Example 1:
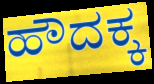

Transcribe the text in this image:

ಹೌದಕ್ಕ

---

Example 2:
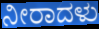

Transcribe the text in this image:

ನೀರಾದಳು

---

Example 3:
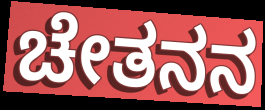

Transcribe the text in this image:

ಚೇತನನ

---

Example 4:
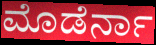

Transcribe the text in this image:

ಮೊಡೆರ್ನಾ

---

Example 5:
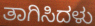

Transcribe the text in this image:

ತಾಗಿಸಿದಳು